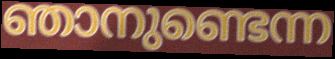
ഞാനുണ്ടെന്ന